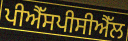
ਪੀਐੱਸਪੀਸੀਐੱਲ